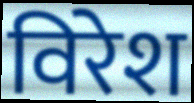
विरेश